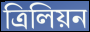
ত্ৰিলিয়ন